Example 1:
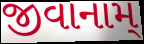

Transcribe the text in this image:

જીવાનામ્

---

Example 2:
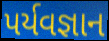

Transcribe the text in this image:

પર્યવજ્ઞાન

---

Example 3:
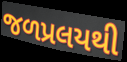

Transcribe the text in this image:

જળપ્રલયથી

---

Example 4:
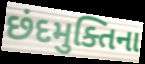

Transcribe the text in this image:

છંદમુક્તિના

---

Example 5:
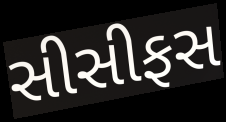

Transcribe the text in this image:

સીસીફસ